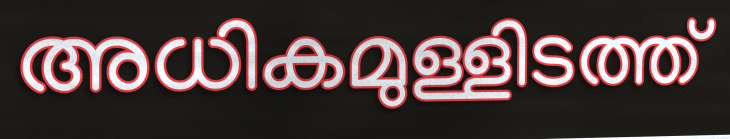
അധികമുള്ളിടത്ത്